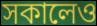
সকালেও